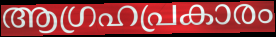
ആഗ്രഹപ്രകാരം